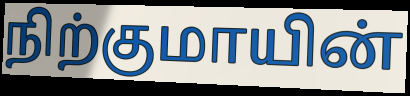
நிற்குமாயின்